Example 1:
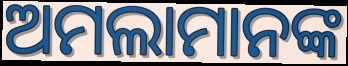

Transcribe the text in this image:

ଅମଲାମାନଙ୍କ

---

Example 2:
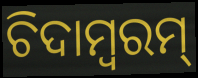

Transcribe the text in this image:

ଚିଦାମ୍ବରମ୍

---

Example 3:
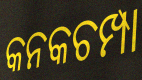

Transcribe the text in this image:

କନକଚମ୍ପା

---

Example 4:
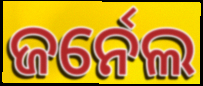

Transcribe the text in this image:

ଜର୍ନେଲ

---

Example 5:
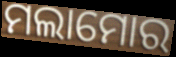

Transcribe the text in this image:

ମଲାମୋର